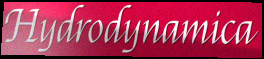
Hydrodynamica